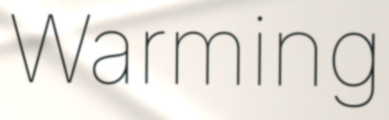
Warming